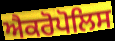
ਐਕਰੋਪੋਲਿਸ